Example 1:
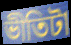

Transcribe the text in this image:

ভীতিটা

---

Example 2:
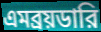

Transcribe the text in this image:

এমব্রয়ডারি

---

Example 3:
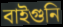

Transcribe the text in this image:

বাইগুনি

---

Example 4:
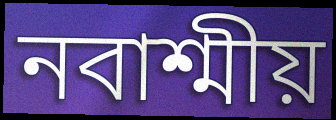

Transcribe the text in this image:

নবাশ্মীয়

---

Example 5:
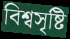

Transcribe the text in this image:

বিশ্বসৃষ্টি